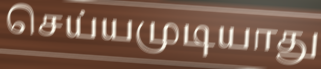
செய்யமுடியாது